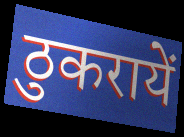
ठुकरायें